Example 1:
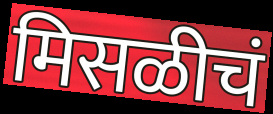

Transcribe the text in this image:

मिसळीचं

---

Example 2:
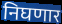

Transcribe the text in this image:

निघणार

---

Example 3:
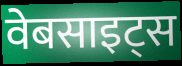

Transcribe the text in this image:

वेबसाइट्स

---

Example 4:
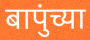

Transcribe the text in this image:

बापुंच्या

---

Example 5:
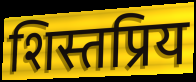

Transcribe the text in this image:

शिस्तप्रिय